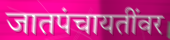
जातपंचायतींवर